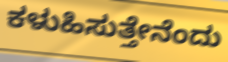
ಕಳುಹಿಸುತ್ತೇನೆಂದು